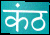
कंठ